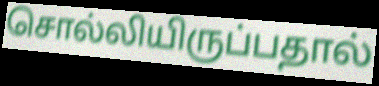
சொல்லியிருப்பதால்